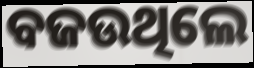
ବଜଉଥିଲେ